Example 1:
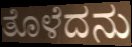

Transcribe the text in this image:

ತೊಳೆದನು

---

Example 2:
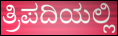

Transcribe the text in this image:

ತ್ರಿಪದಿಯಲ್ಲಿ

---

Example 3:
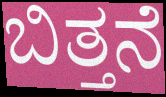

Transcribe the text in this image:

ಬಿತ್ತನೆ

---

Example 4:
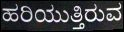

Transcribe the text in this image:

ಹರಿಯುತ್ತಿರುವ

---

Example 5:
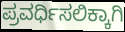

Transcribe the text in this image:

ಪ್ರವರ್ಧಿಸಲಿಕ್ಕಾಗಿ